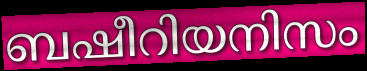
ബഷീറിയനിസം